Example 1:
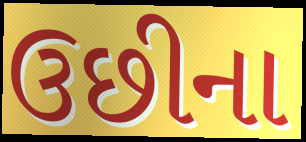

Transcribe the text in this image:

ઉછીના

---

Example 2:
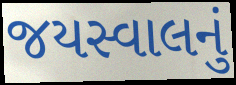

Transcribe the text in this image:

જયસ્વાલનું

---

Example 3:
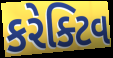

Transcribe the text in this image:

કરેક્ટિવ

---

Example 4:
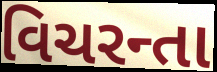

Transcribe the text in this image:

વિચરન્તા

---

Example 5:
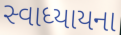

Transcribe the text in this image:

સ્વાધ્યાયના